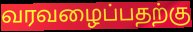
வரவழைப்பதற்கு